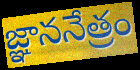
జ్ఞాననేత్రం